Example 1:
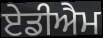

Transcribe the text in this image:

ਏਡੀਐਮ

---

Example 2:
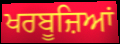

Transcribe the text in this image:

ਖਰਬੂਜ਼ਿਆਂ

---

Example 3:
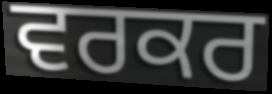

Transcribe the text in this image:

ਵਰਕਰ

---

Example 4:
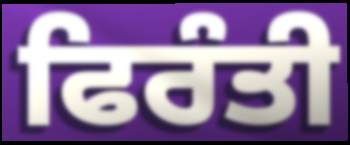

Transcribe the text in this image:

ਫਿਰੰਤੀ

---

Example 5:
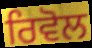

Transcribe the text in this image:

ਰਿਵੋਲ